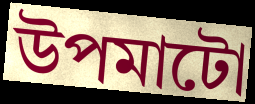
উপমাটো